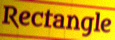
Rectangle